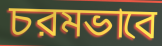
চরমভাবে